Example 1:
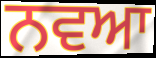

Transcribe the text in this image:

ਨਵਆ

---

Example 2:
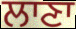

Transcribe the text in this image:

ਲਾਣਾ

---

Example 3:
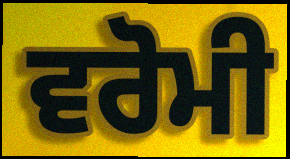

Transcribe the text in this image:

ਵਰੋਮੀ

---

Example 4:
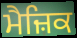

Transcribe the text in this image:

ਮੈਜ਼ਿਕ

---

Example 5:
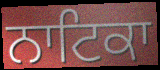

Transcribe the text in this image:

ਨਾਟਿਕਾ